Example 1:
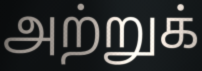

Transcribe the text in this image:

அற்றுக்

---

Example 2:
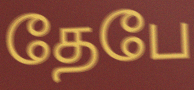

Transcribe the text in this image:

தேபே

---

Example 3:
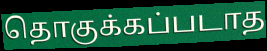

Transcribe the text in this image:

தொகுக்கப்படாத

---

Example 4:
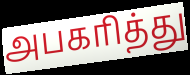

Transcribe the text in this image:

அபகரித்து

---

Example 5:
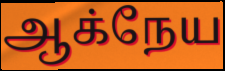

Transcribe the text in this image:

ஆக்நேய